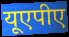
यूएपीए